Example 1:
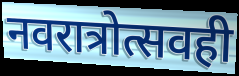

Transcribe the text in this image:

नवरात्रोत्सवही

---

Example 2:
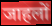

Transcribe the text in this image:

जाहलों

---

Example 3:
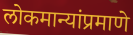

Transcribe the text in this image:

लोकमान्यांप्रमाणे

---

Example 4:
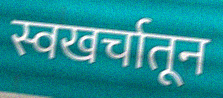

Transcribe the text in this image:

स्वखर्चातून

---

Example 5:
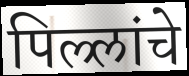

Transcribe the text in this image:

पिल्लांचे